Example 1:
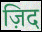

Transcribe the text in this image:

ज़िद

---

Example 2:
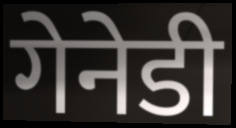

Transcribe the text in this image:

गेनेडी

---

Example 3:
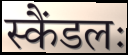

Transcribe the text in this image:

स्कैंडलः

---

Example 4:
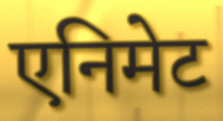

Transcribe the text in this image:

एनिमेट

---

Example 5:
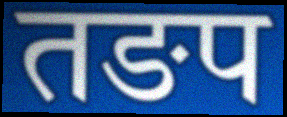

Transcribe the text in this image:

तङप